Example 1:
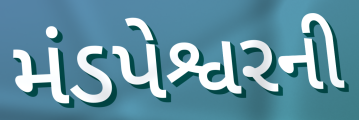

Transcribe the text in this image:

મંડપેશ્વરની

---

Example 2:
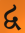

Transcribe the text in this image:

દ્વ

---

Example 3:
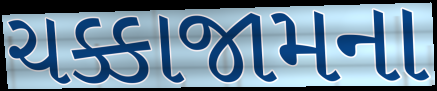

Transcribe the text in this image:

ચક્કાજામના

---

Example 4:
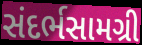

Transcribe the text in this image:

સંદર્ભસામગ્રી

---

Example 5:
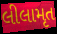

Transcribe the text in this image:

લીલામૃત